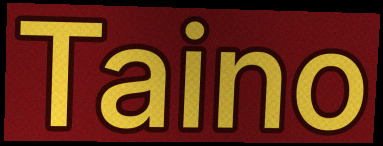
Taino